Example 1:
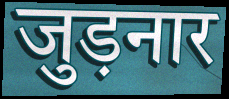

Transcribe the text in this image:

जुड़नार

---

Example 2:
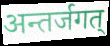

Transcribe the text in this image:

अन्तर्जगत्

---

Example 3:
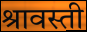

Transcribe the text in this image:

श्रावस्ती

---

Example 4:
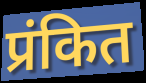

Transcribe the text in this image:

प्रंकित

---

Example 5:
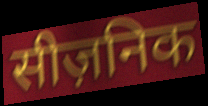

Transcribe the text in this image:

सीज़निक